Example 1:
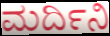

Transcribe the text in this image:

ಮರ್ದಿನಿ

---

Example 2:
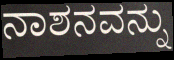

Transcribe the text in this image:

ನಾಶನವನ್ನು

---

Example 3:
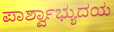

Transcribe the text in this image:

ಪಾರ್ಶ್ವಾಭ್ಯುದಯ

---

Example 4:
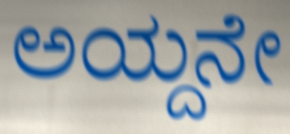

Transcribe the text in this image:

ಅಯ್ದನೇ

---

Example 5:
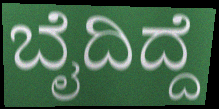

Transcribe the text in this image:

ಬೈದಿದ್ದೆ